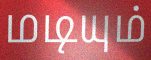
மடியும்